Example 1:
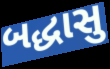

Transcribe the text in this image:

બદ્ધાસુ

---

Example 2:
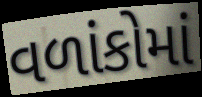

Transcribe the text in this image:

વળાંકોમાં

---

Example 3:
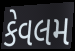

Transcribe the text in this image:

કેવલમ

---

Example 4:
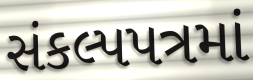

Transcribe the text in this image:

સંકલ્પપત્રમાં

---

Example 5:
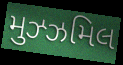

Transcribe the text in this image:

મુઝ્ઝમિલ